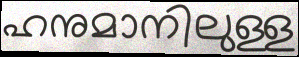
ഹനുമാനിലുള്ള